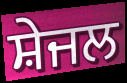
ਸ਼ੇਜਲ